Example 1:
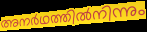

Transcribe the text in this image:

അനർഥത്തിൽനിന്നും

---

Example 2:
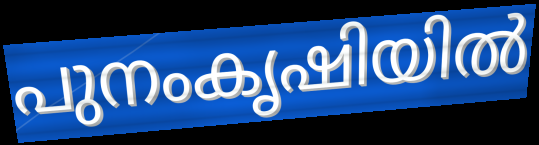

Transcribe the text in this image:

പുനംകൃഷിയിൽ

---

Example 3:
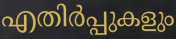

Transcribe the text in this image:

എതിർപ്പുകളും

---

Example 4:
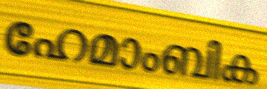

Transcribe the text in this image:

ഹേമാംബിക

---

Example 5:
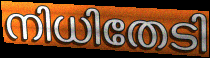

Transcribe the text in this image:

നിധിതേടി